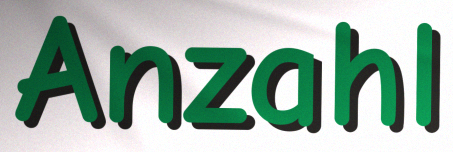
Anzahl